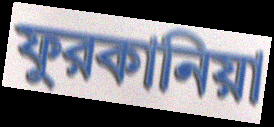
ফুরকানিয়া